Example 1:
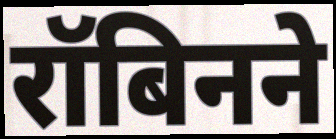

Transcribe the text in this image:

रॉबिनने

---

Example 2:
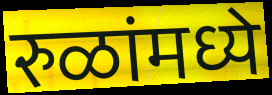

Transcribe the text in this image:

रुळांमध्ये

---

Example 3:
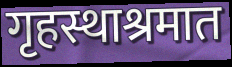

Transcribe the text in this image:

गृहस्थाश्रमात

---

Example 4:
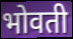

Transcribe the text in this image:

भोवती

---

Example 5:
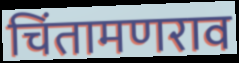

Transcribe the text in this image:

चिंतामणराव